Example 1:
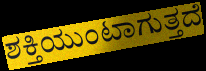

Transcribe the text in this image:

ಶಕ್ತಿಯುಂಟಾಗುತ್ತದೆ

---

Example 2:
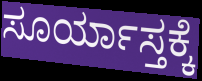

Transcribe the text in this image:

ಸೂರ್ಯಾಸ್ತಕ್ಕೆ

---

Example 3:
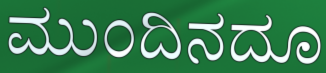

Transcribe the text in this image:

ಮುಂದಿನದೂ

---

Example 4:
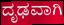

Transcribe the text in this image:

ದೃಢವಾಗಿ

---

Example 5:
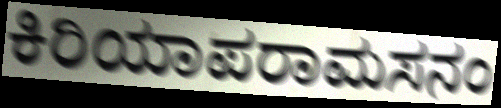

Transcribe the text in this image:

ಕಿರಿಯಾಪರಾಮಸನಂ